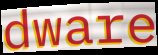
dware